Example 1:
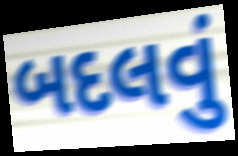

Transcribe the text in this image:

બદલવું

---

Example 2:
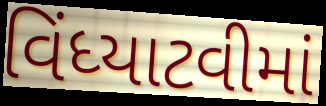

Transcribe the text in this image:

વિંધ્યાટવીમાં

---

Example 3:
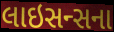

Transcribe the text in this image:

લાઇસન્સના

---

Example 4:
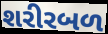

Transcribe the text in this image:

શરીરબળ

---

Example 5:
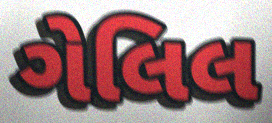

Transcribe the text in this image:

ગેલિલ